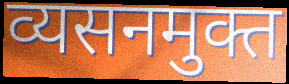
व्यसनमुक्त